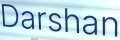
Darshan